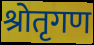
श्रोतृगण